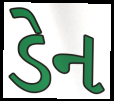
ડેન